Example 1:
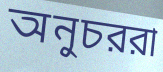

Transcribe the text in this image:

অনুচররা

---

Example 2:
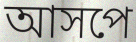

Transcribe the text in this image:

আসপে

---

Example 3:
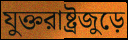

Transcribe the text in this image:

যুক্তরাষ্ট্রজুড়ে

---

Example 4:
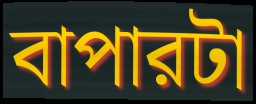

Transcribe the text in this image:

বাপারটা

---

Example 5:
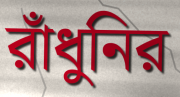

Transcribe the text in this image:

রাঁধুনির